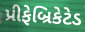
પ્રીફેબ્રિકેટેડ